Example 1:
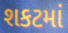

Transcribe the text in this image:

શકટમાં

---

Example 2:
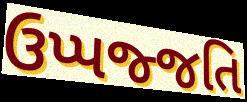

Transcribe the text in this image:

ઉપ્પજ્જતિ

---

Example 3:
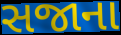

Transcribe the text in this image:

સજાના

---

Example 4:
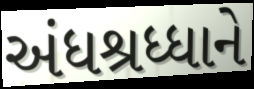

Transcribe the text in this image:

અંધશ્રધ્ધાને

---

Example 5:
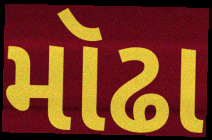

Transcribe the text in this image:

મૉઢા